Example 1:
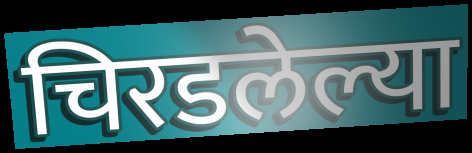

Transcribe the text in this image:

चिरडलेल्या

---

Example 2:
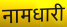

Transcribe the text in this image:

नामधारी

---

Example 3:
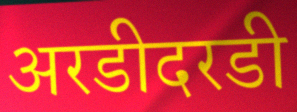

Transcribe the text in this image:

अरडीदरडी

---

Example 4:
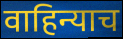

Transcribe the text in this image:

वाहिन्याच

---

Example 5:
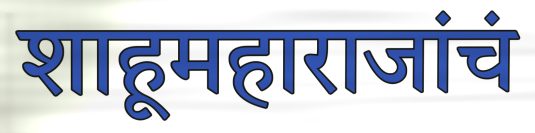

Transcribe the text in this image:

शाहूमहाराजांचं